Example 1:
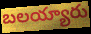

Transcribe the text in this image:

బలయ్యారు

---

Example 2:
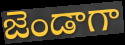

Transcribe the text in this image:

జెండాగా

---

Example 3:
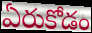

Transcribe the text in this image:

ఏరుకోడం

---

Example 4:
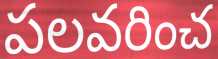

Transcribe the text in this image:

పలవరించ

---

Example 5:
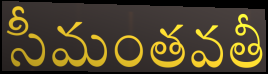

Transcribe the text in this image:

సీమంతవతీ